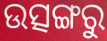
ଉତ୍ସଙ୍ଗରୁ